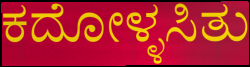
ಕದೋಳ್ಳಸಿತು